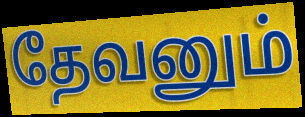
தேவனும்